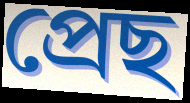
প্ৰেছ